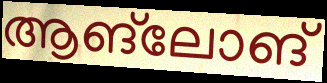
ആങ്‌ലോങ്